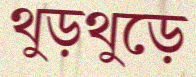
থুড়থুড়ে